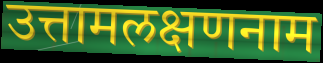
उत्तामलक्षणनाम